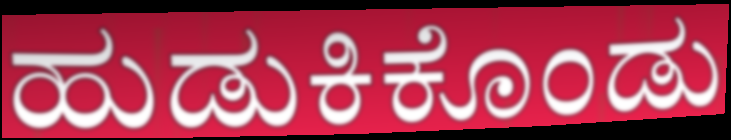
ಹುಡುಕಿಕೊಂಡು